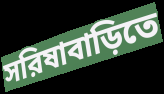
সরিষাবাড়িতে